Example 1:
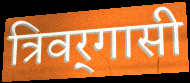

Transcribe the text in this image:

त्रिवर्गासी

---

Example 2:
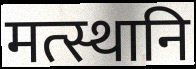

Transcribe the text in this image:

मत्स्थानि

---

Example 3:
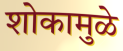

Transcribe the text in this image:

शोकामुळे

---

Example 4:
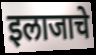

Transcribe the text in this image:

इलाजाचे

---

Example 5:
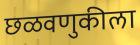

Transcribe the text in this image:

छळवणुकीला